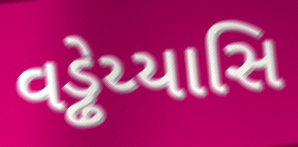
વડ્ઢેય્યાસિ